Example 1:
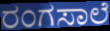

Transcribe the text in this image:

ರಂಗಸಾಲೆ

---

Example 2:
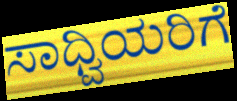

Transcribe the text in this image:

ಸಾಧ್ವಿಯರಿಗೆ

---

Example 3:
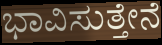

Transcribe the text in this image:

ಭಾವಿಸುತ್ತೇನೆ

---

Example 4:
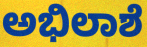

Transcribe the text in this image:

ಅಭಿಲಾಶೆ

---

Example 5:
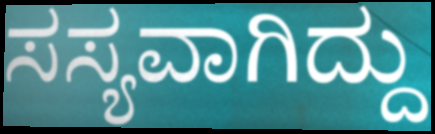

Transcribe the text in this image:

ಸಸ್ಯವಾಗಿದ್ದು